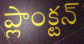
ప్లాంక్టన్